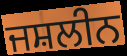
ਜਸ਼ਲੀਨ